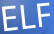
ELF